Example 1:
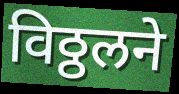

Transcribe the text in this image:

विठ्ठलने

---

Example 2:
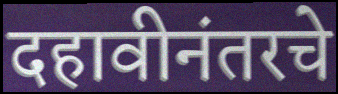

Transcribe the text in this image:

दहावीनंतरचे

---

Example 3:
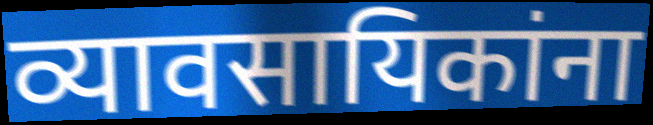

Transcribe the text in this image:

व्यावसायिकांना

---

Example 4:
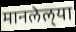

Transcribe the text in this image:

मानलेल्या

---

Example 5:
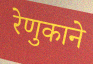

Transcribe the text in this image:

रेणुकाने